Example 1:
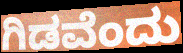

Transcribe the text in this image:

ಗಿಡವೆಂದು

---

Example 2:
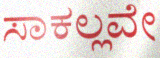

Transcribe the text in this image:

ಸಾಕಲ್ಲವೇ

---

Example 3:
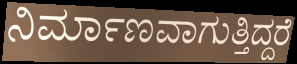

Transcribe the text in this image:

ನಿರ್ಮಾಣವಾಗುತ್ತಿದ್ದರೆ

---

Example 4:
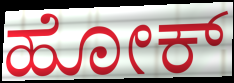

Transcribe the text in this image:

ಹೋಕ್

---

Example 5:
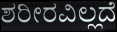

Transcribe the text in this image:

ಶರೀರವಿಲ್ಲದೆ